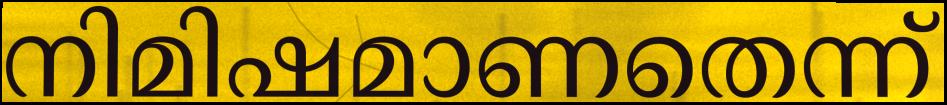
നിമിഷമാണതെന്ന്